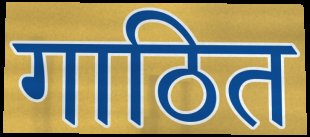
गाठित